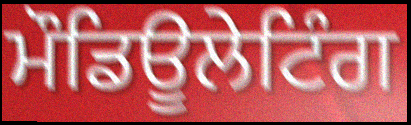
ਮੌਡਿਊਲੇਟਿੰਗ